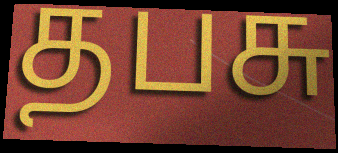
தபசு